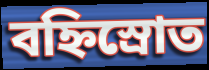
বহ্নিস্রোত